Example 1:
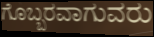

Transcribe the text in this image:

ಗೊಬ್ಬರವಾಗುವರು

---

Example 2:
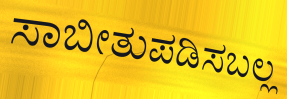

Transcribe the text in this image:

ಸಾಬೀತುಪಡಿಸಬಲ್ಲ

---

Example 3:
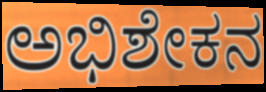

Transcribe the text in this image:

ಅಭಿಶೇಕನ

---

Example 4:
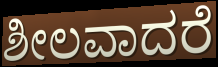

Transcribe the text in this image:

ಶೀಲವಾದರೆ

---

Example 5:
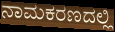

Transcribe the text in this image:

ನಾಮಕರಣದಲ್ಲಿ